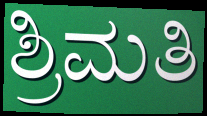
ಶ್ರಿಮತಿ